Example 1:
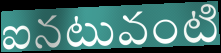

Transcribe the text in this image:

ఐనటువంటి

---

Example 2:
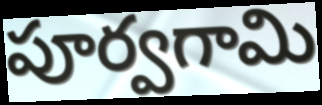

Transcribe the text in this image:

పూర్వగామి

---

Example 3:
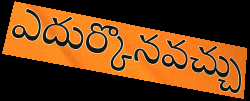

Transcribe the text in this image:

ఎదుర్కొనవచ్చు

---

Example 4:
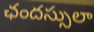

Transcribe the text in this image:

ఛందస్సులా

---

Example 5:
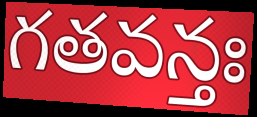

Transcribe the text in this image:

గతవన్తః